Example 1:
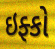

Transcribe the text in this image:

ઇફ્કો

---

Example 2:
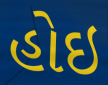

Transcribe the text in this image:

હોઇ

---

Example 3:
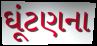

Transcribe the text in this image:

ઘૂંટણના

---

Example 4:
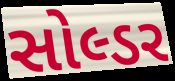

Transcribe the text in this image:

સોલ્ડર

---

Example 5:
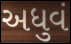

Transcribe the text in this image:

અધુવં